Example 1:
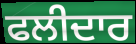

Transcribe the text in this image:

ਫਲੀਦਾਰ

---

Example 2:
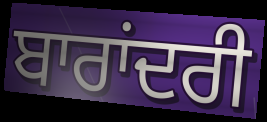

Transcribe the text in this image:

ਬਾਰਾਂਦਰੀ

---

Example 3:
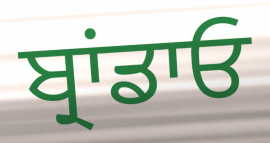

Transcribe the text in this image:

ਬ੍ਰਾਂਡਾਓ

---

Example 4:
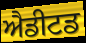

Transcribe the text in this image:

ਐਡੀਟਡ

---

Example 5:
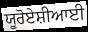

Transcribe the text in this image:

ਯੂਰੋਏਸ਼ੀਆਈ